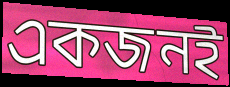
একজনই